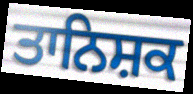
ਤਾਨਿਸ਼ਕ